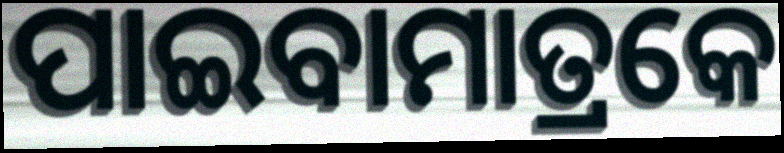
ପାଇବାମାତ୍ରକେ